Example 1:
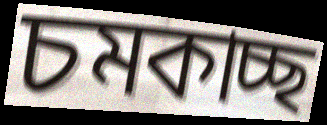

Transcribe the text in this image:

চমকাচ্ছ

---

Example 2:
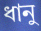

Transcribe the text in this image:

ধানু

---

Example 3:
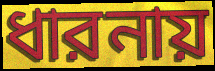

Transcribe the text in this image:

ধারনায়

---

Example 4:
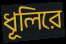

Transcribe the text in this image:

ধূলিরে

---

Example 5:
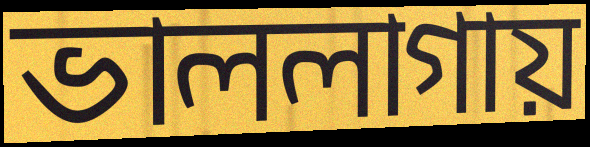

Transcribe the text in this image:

ভাললাগায়